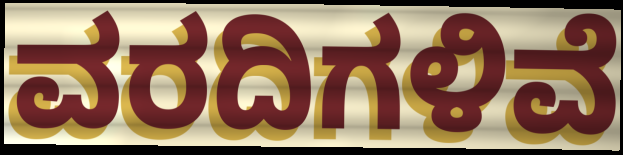
ವರದಿಗಳಿವೆ